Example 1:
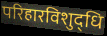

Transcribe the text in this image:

परिहारविशुद्धि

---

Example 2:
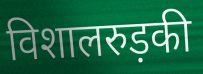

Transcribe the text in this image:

विशालरुड़की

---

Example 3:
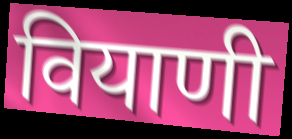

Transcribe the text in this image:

वियाणी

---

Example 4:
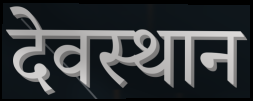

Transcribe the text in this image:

देवस्थान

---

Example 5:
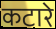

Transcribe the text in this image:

कटारे